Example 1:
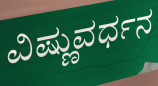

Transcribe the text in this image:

ವಿಷ್ಣುವರ್ಧನ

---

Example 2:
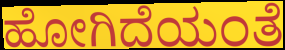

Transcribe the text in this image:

ಹೋಗಿದೆಯಂತೆ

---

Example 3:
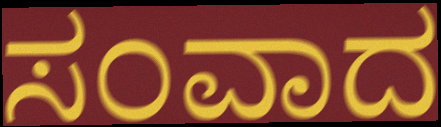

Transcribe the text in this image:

ಸಂವಾದ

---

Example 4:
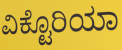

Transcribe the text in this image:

ವಿಕ್ಟೊರಿಯಾ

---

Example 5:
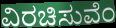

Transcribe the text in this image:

ವಿರಚಿಸುವೆಂ